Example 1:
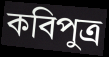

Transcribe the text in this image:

কবিপুত্র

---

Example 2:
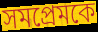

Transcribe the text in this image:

সমপ্রেমকে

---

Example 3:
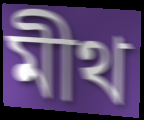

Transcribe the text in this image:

মীথ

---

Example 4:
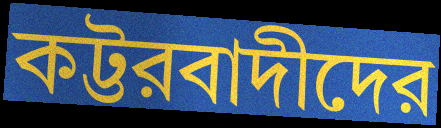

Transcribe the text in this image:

কট্টরবাদীদের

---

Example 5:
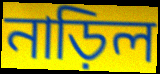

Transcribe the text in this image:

নাড়িল